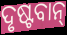
ଦୃଷ୍ଟବାନ୍